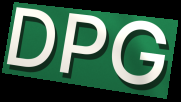
DPG